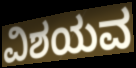
ವಿಶಯವ